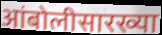
आंबोलीसारख्या